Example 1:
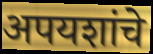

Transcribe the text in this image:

अपयशांचे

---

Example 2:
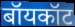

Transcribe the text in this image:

बॉयकॉट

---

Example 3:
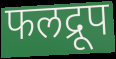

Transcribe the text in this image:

फलद्रूप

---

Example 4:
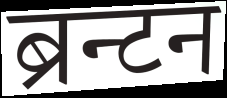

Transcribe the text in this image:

ब्रन्टन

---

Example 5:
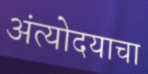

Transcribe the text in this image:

अंत्योदयाचा